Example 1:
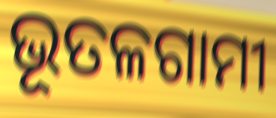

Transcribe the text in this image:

ଭୂତଳଗାମୀ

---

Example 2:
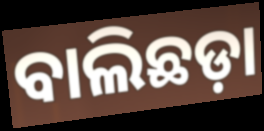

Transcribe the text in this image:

ବାଲିଛଡ଼ା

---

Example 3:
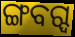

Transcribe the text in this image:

ଙ୍ଗବଗ୍ଦ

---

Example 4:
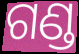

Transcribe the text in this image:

ଗଣ୍ଡ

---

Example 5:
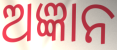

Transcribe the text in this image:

ଅଜ୍ଞାନ